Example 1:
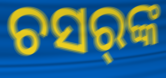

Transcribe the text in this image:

ଚସର୍‌ଙ୍କ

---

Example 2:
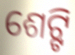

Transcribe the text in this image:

ଶେଟ୍ଟି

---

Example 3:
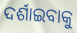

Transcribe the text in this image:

ଦର୍ଶାଇବାକୁ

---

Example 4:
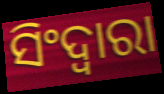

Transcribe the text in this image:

ସିଂଦ୍ୱାରା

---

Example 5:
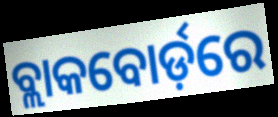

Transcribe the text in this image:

ବ୍ଲାକବୋର୍ଡ଼ରେ